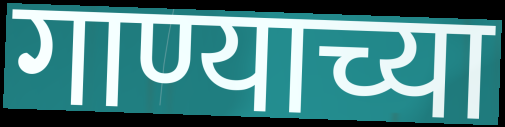
गाण्याच्या